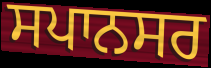
ਸਪਾਨਸਰ